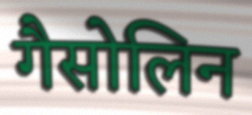
गैसोलिन